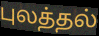
புலத்தல்